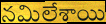
నమిలేశాయి